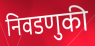
निवडणुकी